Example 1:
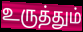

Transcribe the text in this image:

உருத்தும்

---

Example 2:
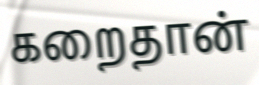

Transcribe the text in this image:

கறைதான்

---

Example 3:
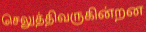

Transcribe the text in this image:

செலுத்திவருகின்றன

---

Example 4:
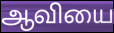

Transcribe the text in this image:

ஆவியை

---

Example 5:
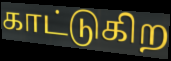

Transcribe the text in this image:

காட்டுகிற